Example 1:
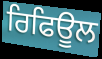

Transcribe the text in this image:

ਰਿਫਿਊਲ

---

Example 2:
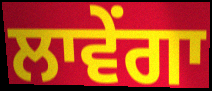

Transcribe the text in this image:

ਲਾਵੇਂਗਾ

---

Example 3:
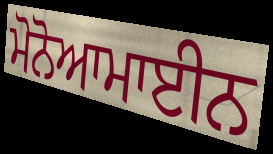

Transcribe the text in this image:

ਮੋਨੋਆਮਾਈਨ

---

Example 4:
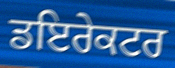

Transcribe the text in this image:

ਡਇਰੇਕਟਰ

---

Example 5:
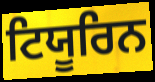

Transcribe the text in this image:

ਟਿਯੂਰਿਨ